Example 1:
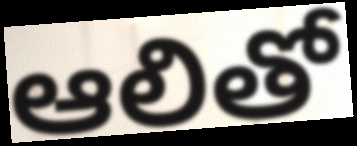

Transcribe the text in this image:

ఆలితో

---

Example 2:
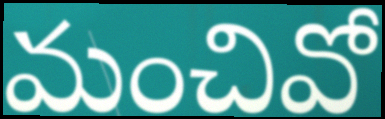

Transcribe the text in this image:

మంచివో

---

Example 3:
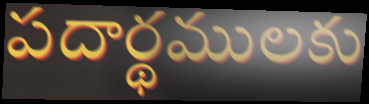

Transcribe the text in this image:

పదార్థములకు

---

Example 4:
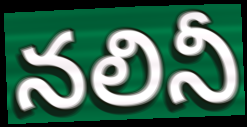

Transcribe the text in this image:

నలినీ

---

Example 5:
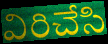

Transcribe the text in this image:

విరిచేసి